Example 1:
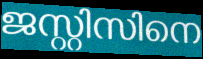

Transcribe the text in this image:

ജസ്റ്റിസിനെ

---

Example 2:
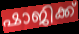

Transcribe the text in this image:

ഷാജിക്ക്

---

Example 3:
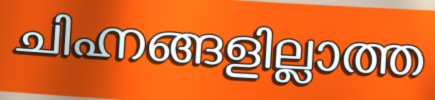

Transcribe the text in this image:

ചിഹ്നങ്ങളില്ലാത്ത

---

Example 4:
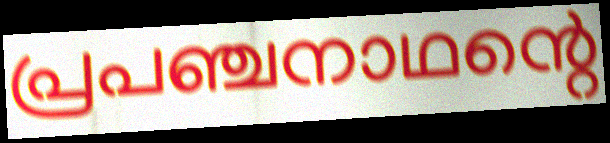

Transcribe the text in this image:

പ്രപഞ്ചനാഥന്റെ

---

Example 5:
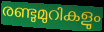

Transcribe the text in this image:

രണ്ടുമുറികളും